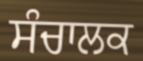
ਸੰਚਾਲਕ